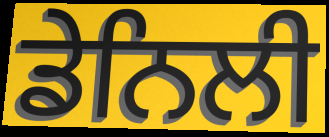
ਡੇਨਿਲੀ